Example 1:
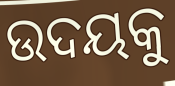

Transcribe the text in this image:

ଉଦୟକୁ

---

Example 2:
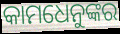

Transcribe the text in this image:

କାମଧେନୁଙ୍କର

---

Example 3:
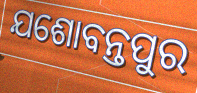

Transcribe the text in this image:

ଯଶୋବନ୍ତପୁର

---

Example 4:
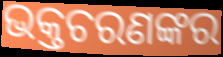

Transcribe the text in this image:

ଭକ୍ତଚରଣଙ୍କର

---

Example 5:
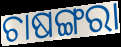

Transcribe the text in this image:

ଚାଷଙ୍ଗରା